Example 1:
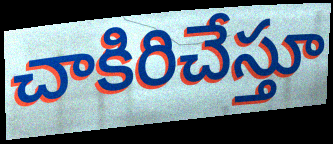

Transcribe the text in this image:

చాకిరిచేస్తూ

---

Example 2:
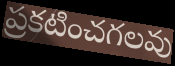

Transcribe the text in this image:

ప్రకటించగలవు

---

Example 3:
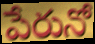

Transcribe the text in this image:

పేరునో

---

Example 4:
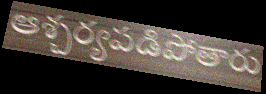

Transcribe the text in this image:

ఆశ్చర్యపడిపోతారు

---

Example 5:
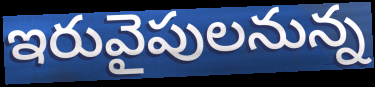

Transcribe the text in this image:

ఇరువైపులనున్న